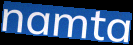
namta